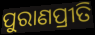
ପୁରାଣପ୍ରୀତି